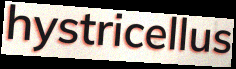
hystricellus